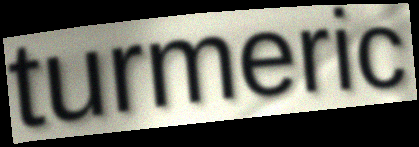
turmeric